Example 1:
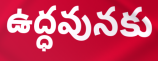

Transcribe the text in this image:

ఉద్ధవునకు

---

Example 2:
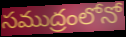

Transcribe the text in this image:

సముద్రంలోనో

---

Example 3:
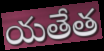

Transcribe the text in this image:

యతేత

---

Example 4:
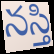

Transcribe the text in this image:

నస్తి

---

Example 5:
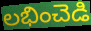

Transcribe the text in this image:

లభించెడి